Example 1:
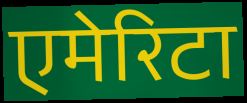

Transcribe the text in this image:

एमेरिटा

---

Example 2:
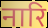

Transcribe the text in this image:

नारि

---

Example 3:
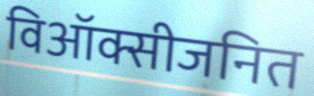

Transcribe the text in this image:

विऑक्सीजनित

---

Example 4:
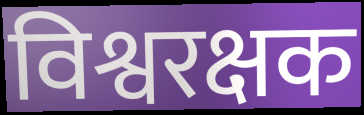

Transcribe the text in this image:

विश्वरक्षक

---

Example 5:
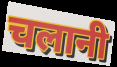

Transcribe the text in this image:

चलानी